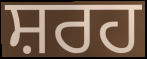
ਸ਼ਰਹ